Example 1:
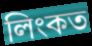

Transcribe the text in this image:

লিংকত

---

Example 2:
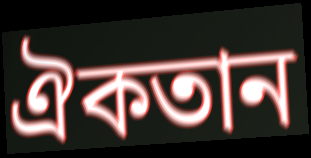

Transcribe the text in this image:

ঐকতান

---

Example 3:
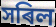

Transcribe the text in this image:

সৰিল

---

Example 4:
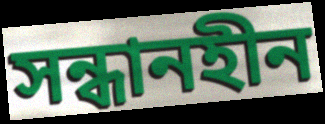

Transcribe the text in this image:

সন্ধানহীন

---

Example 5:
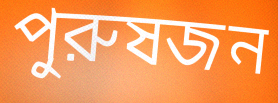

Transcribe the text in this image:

পুৰুষজন